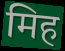
मिह